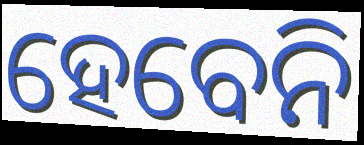
ହେବେନି